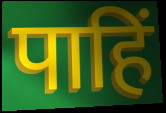
पाहिं